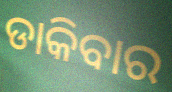
ଡାକିବାର